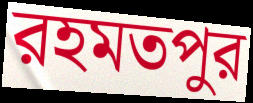
রহমতপুর